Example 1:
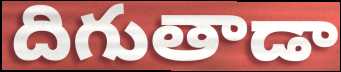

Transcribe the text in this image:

దిగుతాడా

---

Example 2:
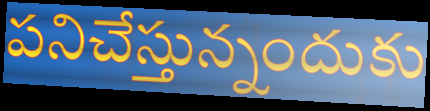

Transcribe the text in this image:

పనిచేస్తున్నందుకు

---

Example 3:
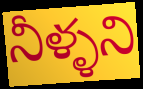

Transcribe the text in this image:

నీళ్ళని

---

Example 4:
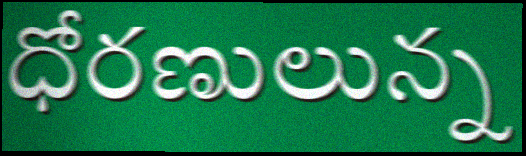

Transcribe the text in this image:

ధోరణులున్న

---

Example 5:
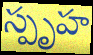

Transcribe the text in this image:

స్పృహ